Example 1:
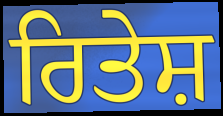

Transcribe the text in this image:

ਰਿਤੇਸ਼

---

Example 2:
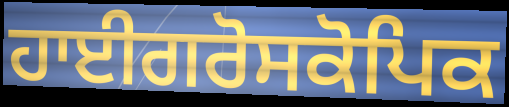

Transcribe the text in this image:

ਹਾਈਗਰੋਸਕੋਪਿਕ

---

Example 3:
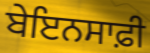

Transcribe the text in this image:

ਬੇਇਨਸਾਫ਼ੀ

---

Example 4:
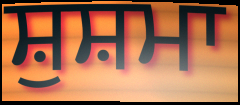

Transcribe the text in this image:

ਸ਼ੁਸ਼ਮਾ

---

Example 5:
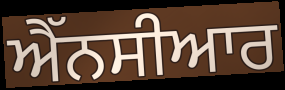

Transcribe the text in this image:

ਐੱਨਸੀਆਰ